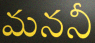
మననీ